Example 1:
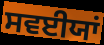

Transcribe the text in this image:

ਸਵਈਯਾਂ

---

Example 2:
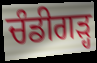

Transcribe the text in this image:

ਚੰਡੀਗਡ਼੍ਹ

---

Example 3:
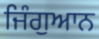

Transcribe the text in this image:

ਜਿੰਗੁਆਨ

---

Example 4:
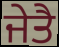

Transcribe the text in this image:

ਜੇਤੈ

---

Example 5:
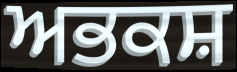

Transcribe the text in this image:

ਅਭਕਸ਼